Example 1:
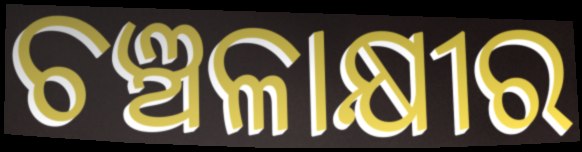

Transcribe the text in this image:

ଚଞ୍ଚଳାକ୍ଷୀର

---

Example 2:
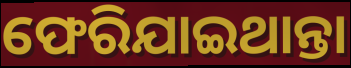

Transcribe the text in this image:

ଫେରିଯାଇଥାନ୍ତା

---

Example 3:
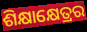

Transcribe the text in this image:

ଶିକ୍ଷାକ୍ଷେତ୍ରର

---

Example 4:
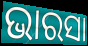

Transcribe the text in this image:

ଭାରସା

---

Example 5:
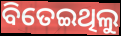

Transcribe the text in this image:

ବିତେଇଥିଲୁ